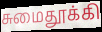
சுமைதூக்கி